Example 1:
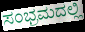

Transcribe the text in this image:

ಸಂಭ್ರಮದಲ್ಲಿ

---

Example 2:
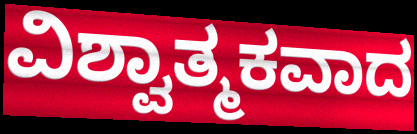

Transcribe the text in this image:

ವಿಶ್ವಾತ್ಮಕವಾದ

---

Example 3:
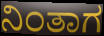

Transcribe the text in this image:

ನಿಂತಾಗ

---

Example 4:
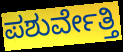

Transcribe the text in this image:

ಪಶುರ್ವೇತ್ತಿ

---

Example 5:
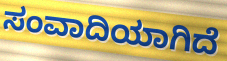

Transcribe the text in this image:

ಸಂವಾದಿಯಾಗಿದೆ